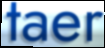
taer